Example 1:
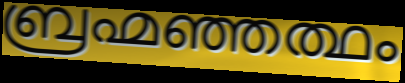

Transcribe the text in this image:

ബ്രഹ്മഞ്ഞത്ഥം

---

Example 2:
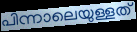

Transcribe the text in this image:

പിന്നാലെയുള്ളത്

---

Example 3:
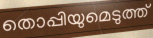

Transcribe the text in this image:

തൊപ്പിയുമെടുത്ത്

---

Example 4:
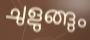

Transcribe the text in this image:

ചുളുങ്ങും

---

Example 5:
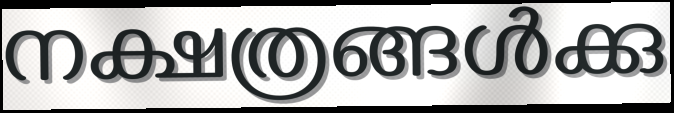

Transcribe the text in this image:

നക്ഷത്രങ്ങൾക്കു